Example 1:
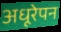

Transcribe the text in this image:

अधूरेपन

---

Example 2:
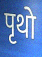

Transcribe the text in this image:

पृथो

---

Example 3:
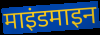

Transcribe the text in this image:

माइंडमाइन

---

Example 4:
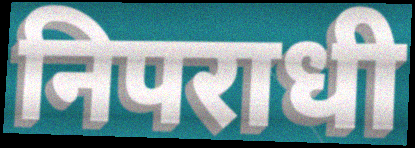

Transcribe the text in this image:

निपराधी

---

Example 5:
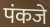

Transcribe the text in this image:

पंकजे